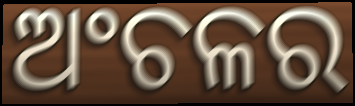
ଅଂଚଳର